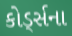
કોર્ડ્સના